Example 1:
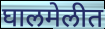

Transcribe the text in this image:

घालमेलीत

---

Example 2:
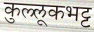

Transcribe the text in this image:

कुल्लूकभट्ट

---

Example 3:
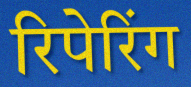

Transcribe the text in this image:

रिपेरिंग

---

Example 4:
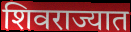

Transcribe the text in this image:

शिवराज्यात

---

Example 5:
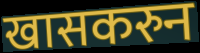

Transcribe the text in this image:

खासकरुन